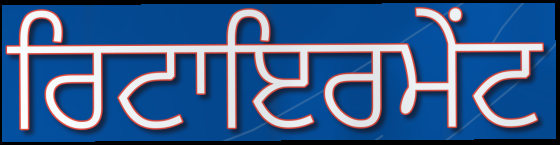
ਰਿਟਾਇਰਮੇਂਟ